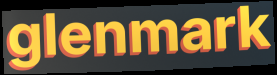
glenmark